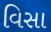
વિસા